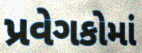
પ્રવેગકોમાં